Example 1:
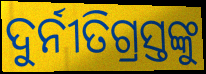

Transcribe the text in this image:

ଦୁର୍ନୀତିଗ୍ରସ୍ତଙ୍କୁ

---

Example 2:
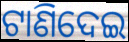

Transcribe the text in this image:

ଟାଣିଦେଇ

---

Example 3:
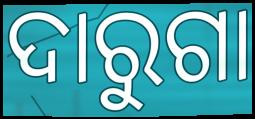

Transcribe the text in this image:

ଦାରୁଗା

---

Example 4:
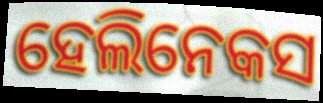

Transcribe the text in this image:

ହେଲିନେକସ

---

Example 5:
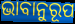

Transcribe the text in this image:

ଭାବାନୁରୂପ